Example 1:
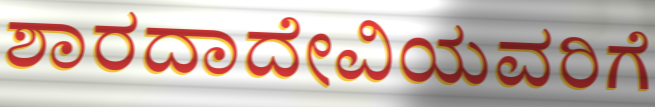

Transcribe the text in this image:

ಶಾರದಾದೇವಿಯವರಿಗೆ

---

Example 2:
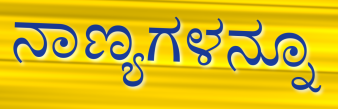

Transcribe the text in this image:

ನಾಣ್ಯಗಳನ್ನೂ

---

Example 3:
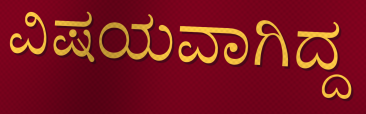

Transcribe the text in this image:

ವಿಷಯವಾಗಿದ್ದ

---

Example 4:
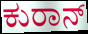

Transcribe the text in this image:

ಕುರಾನ್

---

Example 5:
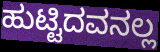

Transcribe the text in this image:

ಹುಟ್ಟಿದವನಲ್ಲ